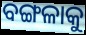
ବଙ୍ଗଳାକୁ